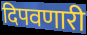
दिपवणारी